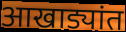
आखाड्यांत